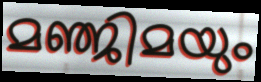
മഞ്ജിമയും